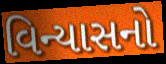
વિન્યાસનો